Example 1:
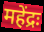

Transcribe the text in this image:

महेंद्रः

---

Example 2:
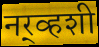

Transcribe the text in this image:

नर्व्हशी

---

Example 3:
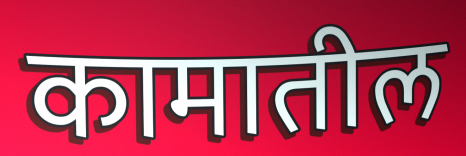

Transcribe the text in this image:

कामातील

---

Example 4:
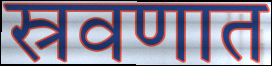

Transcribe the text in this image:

स्रवणात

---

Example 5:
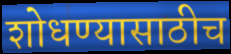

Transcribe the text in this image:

शोधण्यासाठीच